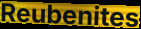
Reubenites